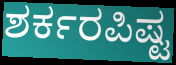
ಶರ್ಕರಪಿಷ್ಟ